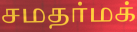
சமதர்மக்